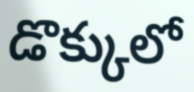
డొక్కులో